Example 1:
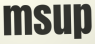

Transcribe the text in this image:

msup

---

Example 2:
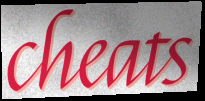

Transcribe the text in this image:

cheats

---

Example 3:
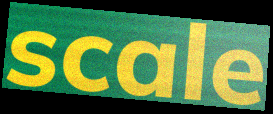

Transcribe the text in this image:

scale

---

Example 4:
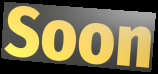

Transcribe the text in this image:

Soon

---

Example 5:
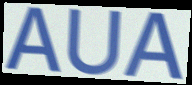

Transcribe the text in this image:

AUA